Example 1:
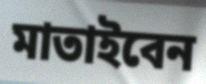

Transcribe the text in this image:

মাতাইবেন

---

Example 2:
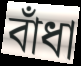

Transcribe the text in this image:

বাঁধা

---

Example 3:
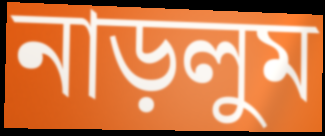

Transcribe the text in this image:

নাড়লুম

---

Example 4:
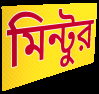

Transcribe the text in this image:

মিন্টুর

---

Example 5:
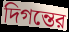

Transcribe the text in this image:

দিগন্তের